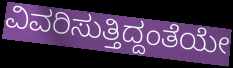
ವಿವರಿಸುತ್ತಿದ್ದಂತೆಯೇ